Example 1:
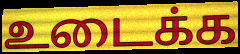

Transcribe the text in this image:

உடைக்க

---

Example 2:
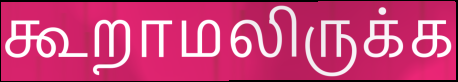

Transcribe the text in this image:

கூறாமலிருக்க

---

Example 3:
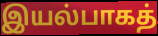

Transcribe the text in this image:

இயல்பாகத்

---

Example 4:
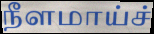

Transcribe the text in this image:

நீளமாய்ச்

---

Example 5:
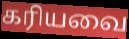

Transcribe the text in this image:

கரியவை